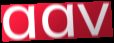
aav